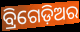
ବ୍ରିଗେଡ଼ିଅର